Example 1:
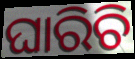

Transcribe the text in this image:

ଘାରିଚି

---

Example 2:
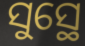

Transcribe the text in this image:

ସୁସ୍ଥେ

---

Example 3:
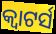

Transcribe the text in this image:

କ୍ଵାଟର୍ସ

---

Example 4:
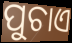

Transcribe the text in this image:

ପୁଚାଏ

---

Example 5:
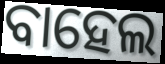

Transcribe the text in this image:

ବାହେଲ